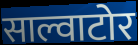
साल्वाटोर